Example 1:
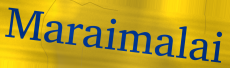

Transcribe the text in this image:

Maraimalai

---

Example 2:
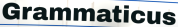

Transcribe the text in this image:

Grammaticus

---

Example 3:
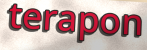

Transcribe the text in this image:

terapon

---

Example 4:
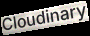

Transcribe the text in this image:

Cloudinary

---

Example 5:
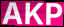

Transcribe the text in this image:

AKP